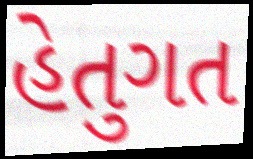
હેતુગત